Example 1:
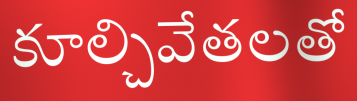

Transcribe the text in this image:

కూల్చివేతలతో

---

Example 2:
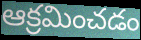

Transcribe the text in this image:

ఆక్రమించడం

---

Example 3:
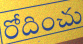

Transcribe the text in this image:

రోదించు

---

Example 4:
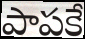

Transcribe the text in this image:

పాపకే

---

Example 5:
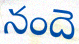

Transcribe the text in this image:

నందె